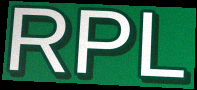
RPL